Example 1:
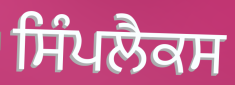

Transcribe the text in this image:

ਸਿੰਪਲੈਕਸ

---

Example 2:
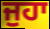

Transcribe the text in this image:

ਜੁਹਾ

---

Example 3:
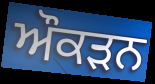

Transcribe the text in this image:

ਔਕੜਨ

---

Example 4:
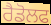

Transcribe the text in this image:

ਰੈਡੋਲਫ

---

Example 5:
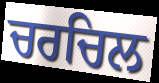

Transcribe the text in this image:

ਚਰਚਿਲ